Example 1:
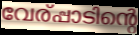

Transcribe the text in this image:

വേര്പ്പാടിന്റെ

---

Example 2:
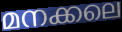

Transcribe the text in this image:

മനക്കലെ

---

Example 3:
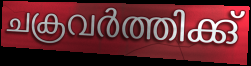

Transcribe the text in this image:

ചക്രവർത്തിക്കു്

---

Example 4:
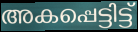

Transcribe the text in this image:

അകപ്പെട്ടിട്ട്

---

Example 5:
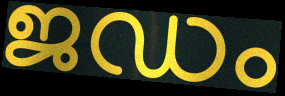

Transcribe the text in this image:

ജഡം